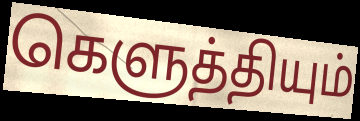
கெளுத்தியும்